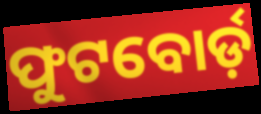
ଫୁଟବୋର୍ଡ଼